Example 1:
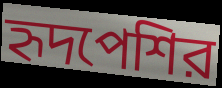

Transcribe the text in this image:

হৃদপেশির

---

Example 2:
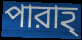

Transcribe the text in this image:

পারাহ্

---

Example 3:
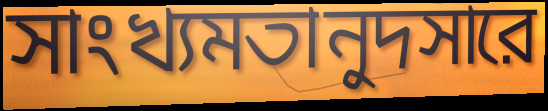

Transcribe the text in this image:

সাংখ্যমতানুদসারে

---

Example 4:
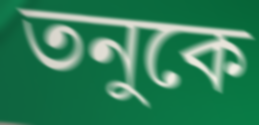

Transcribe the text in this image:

তনুকে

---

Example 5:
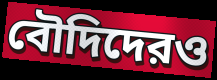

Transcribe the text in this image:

বৌদিদেরও